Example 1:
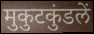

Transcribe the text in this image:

मुकुटकुंडलें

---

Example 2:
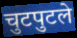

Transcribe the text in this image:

चुटपुटले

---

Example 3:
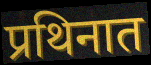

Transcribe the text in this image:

प्रथिनात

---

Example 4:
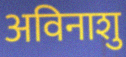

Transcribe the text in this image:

अविनाशु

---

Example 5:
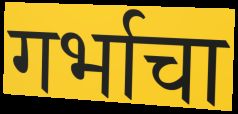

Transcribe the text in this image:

गर्भाचा